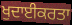
ਖੁਦਾਈਕਰਤਾ